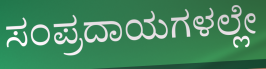
ಸಂಪ್ರದಾಯಗಳಲ್ಲೇ